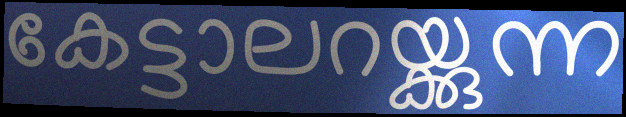
കേട്ടാലറയ്ക്കുന്ന